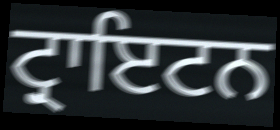
ਟ੍ਰਾਇਟਨ